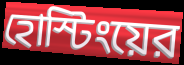
হোস্টিংয়ের